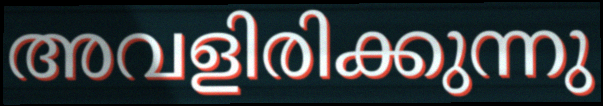
അവളിരിക്കുന്നു